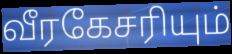
வீரகேசரியும்